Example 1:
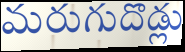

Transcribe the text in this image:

మరుగుదొడ్లు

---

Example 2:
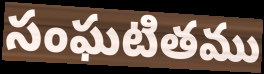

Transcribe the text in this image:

సంఘటితము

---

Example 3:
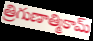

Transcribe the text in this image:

త్రిగుణాత్మికామ్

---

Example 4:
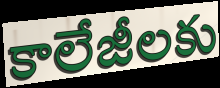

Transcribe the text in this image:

కాలేజీలకు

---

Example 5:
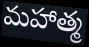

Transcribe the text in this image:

మహాత్మ